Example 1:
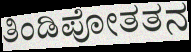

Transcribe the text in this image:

ತಿಂಡಿಪೋತತನ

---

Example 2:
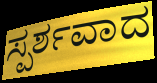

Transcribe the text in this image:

ಸ್ಪರ್ಶವಾದ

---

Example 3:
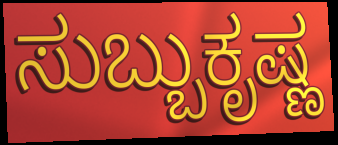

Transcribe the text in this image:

ಸುಬ್ಬುಕೃಷ್ಣ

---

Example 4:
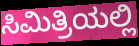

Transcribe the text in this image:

ಸಿಮಿತ್ರಿಯಲ್ಲಿ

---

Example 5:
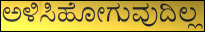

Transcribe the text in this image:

ಅಳಿಸಿಹೋಗುವುದಿಲ್ಲ